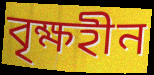
বৃক্ষহীন